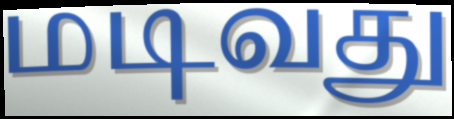
மடிவது